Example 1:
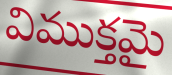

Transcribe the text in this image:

విముక్తమై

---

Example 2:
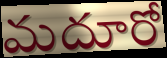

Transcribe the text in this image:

మదూరో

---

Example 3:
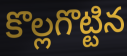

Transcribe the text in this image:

కొల్లగొట్టిన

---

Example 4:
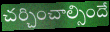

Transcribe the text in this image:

చర్చించాల్సిందే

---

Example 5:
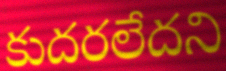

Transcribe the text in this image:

కుదరలేదని